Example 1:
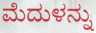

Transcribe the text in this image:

ಮೆದುಳನ್ನು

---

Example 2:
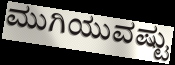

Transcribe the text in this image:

ಮುಗಿಯುವಷ್ಟು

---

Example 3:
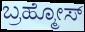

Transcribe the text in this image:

ಬ್ರಹ್ಮೋಸ್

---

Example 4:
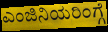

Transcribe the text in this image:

ಎಂಜಿನಿಯರಿಂಗ್ಗೆ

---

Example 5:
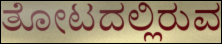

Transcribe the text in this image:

ತೋಟದಲ್ಲಿರುವ